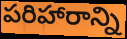
పరిహారాన్ని